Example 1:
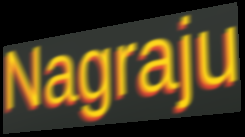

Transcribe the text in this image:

Nagraju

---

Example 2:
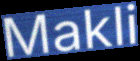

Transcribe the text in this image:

Makli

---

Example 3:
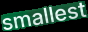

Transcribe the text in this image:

smallest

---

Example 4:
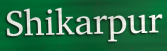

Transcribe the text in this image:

Shikarpur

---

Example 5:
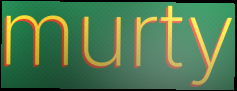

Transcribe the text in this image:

murty